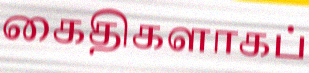
கைதிகளாகப்